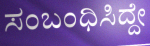
ಸಂಬಂಧಿಸಿದ್ದೇ